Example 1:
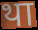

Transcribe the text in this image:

था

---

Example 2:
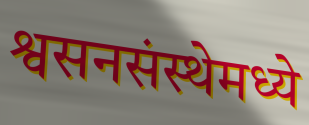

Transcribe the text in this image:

श्वसनसंस्थेमध्ये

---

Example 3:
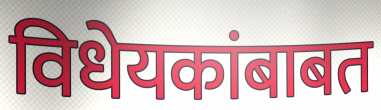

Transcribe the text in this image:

विधेयकांबाबत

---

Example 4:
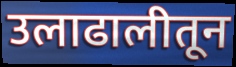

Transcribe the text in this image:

उलाढालीतून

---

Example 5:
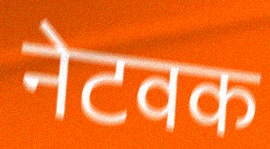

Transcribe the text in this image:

नेटवक